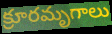
క్రూరమృగాలు